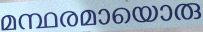
മന്ഥരമായൊരു